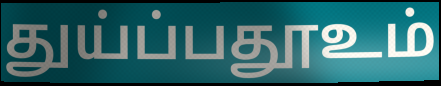
துய்ப்பதூஉம்